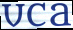
uca